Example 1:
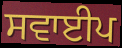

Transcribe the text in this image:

ਸਵਾਈਪ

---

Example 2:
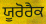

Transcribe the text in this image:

ਯੂਰੋਰੈਕ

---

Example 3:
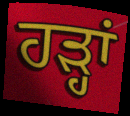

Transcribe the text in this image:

ਹੜ੍ਹਾਂ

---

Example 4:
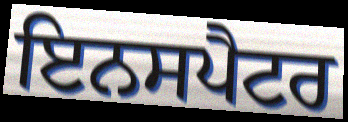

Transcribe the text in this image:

ਇਨਸਪੈਟਰ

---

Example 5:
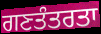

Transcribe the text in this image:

ਗਣਤੰਤਰਤਾ